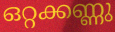
ഒറ്റക്കണ്ണു